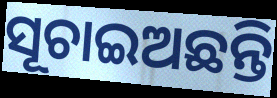
ସୂଚାଇଅଛନ୍ତି